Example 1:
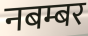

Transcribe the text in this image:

नबम्बर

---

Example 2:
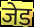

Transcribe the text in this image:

जेड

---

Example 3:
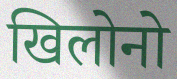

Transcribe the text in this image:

खिलोनो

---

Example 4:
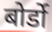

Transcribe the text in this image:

बोर्डो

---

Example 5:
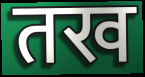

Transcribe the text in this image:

तख